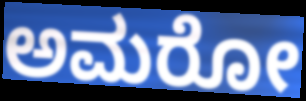
ಅಮರೋ